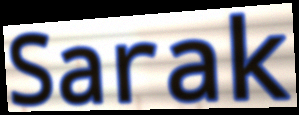
Sarak